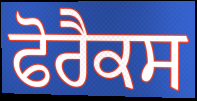
ਫੋਰੈਕਸ